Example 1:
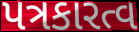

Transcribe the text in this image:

પત્રકારત્વ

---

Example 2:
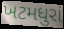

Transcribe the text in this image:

ખટમધુરાં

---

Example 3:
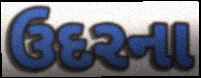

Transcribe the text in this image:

ઉદરના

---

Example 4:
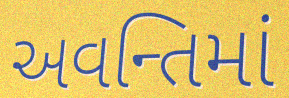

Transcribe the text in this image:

અવન્તિમાં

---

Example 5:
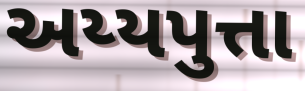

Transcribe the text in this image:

અય્યપુત્તા